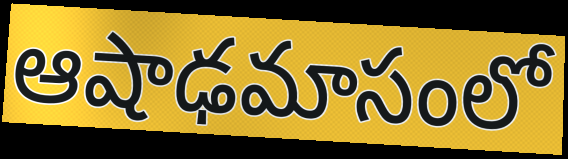
ఆషాఢమాసంలో